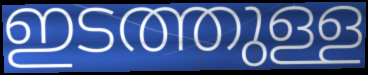
ഇടത്തുള്ള